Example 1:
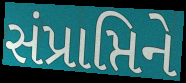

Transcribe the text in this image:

સંપ્રાપ્તિને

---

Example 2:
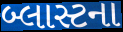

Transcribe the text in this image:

બ્લાસ્ટના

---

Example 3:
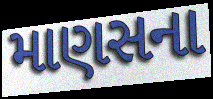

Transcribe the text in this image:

માણસના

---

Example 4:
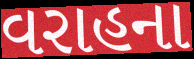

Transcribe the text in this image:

વરાહના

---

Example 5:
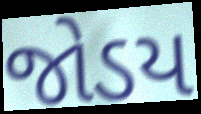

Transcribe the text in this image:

જોડય